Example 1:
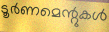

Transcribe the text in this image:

ടൂർണമെന്റുകൾ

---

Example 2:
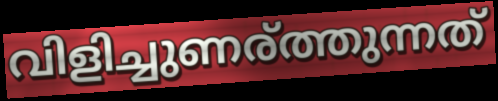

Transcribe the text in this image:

വിളിച്ചുണര്ത്തുന്നത്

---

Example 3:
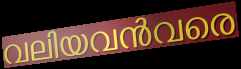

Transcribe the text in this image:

വലിയവൻവരെ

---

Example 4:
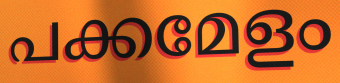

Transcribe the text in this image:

പക്കമേളം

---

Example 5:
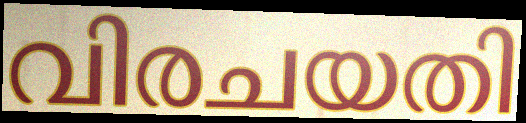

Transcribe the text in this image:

വിരചയതി